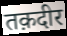
तक़दीर